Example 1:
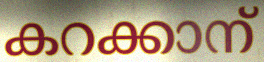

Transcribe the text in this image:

കറക്കാന്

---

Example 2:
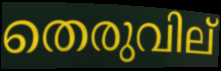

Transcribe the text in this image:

തെരുവില്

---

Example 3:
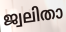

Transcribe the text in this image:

ജ്വലിതാ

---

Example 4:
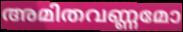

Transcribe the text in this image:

അമിതവണ്ണമോ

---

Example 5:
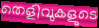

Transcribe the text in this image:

തെളിവുകളുടെ